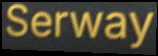
Serway